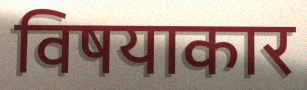
विषयाकार